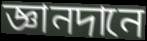
জ্ঞানদানে